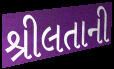
શ્રીલતાની